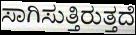
ಸಾಗಿಸುತ್ತಿರುತ್ತದೆ